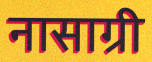
नासाग्री